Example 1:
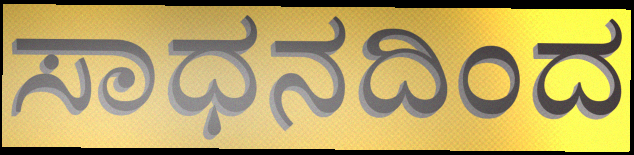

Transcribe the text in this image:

ಸಾಧನದಿಂದ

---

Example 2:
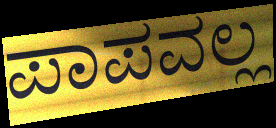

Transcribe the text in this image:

ಪಾಪವಲ್ಲ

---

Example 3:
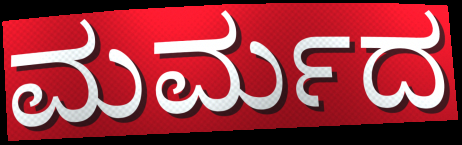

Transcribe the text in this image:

ಮರ್ಮದ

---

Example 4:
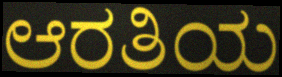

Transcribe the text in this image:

ಆರತಿಯ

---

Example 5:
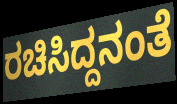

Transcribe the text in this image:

ರಚಿಸಿದ್ದನಂತೆ